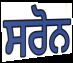
ਸਰੋਨ